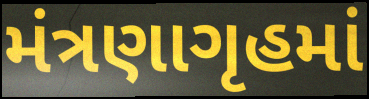
મંત્રણાગૃહમાં